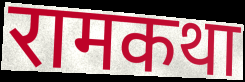
रामकथा